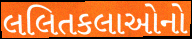
લલિતકલાઓનો